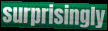
surprisingly